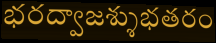
భరద్వాజశ్శుభతరం